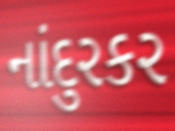
નાંદુરકર